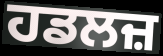
ਹਡਲਜ਼